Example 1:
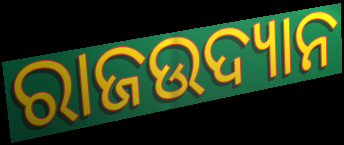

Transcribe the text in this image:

ରାଜଉଦ୍ୟାନ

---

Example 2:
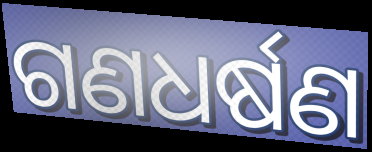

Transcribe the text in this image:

ଗଣଧର୍ଷଣ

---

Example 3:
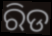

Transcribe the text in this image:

ରିଡ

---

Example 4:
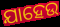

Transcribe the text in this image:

ଯାହେଉ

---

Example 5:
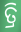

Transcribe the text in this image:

ତ୍ରି